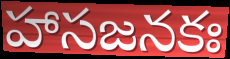
హాసజనకః